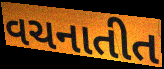
વચનાતીત